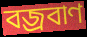
বজ্রবাণ